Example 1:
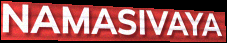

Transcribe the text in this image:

NAMASIVAYA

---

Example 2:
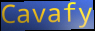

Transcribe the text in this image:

Cavafy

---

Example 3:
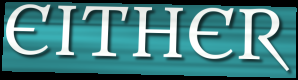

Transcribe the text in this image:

EITHER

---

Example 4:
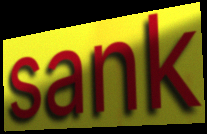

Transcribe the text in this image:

sank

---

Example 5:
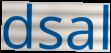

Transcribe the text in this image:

dsal